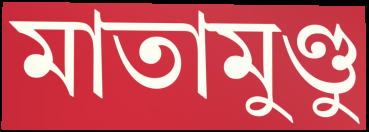
মাতামুণ্ডু